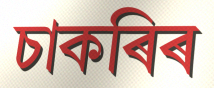
চাকৰিৰ